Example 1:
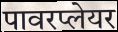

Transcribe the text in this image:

पावरप्लेयर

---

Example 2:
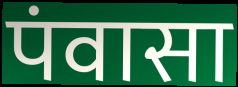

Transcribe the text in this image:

पंवासा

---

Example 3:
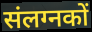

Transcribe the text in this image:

संलग्नकों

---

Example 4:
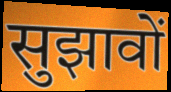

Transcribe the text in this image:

सुझावों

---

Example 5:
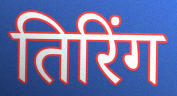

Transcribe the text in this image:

तिरिंग